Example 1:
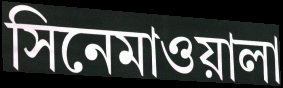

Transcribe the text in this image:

সিনেমাওয়ালা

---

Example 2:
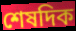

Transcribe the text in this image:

শেষদিক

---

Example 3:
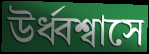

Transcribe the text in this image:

উর্ধ্বশ্বাসে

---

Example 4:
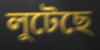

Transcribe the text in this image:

লুটেছে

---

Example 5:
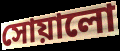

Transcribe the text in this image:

সোয়ালো